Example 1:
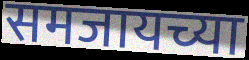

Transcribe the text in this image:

समजायच्या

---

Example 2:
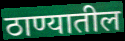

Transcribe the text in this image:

ठाण्यातील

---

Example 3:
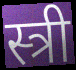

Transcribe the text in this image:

स्त्री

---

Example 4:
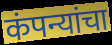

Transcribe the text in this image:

कंपन्यांचा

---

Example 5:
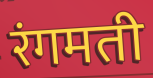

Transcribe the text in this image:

रंगमती